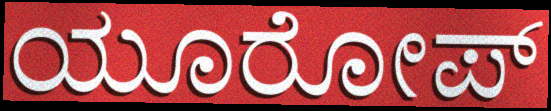
ಯೂರೋಪ್